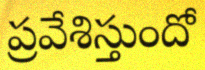
ప్రవేశిస్తుందో